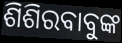
ଶିଶିରବାବୁଙ୍କ